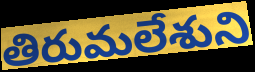
తిరుమలేశుని